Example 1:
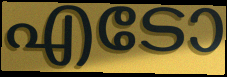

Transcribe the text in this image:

എടോ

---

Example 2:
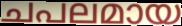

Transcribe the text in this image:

ചപലമായ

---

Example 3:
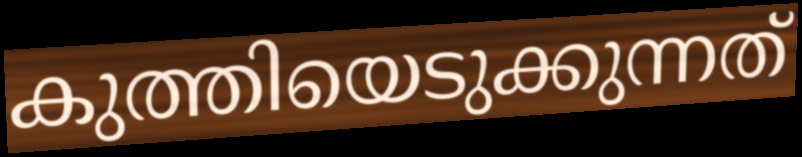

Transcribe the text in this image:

കുത്തിയെടുക്കുന്നത്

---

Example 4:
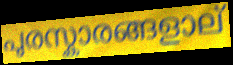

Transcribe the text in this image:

പുരസ്കാരങ്ങളാല്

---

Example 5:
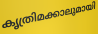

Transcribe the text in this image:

കൃത്രിമക്കാലുമായി